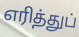
எரித்துப்